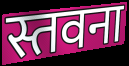
स्तवना